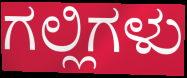
ಗಲ್ಲಿಗಳು